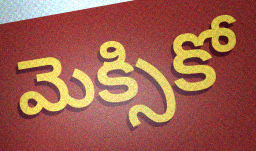
మెక్సికో